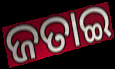
ଜତାଇ